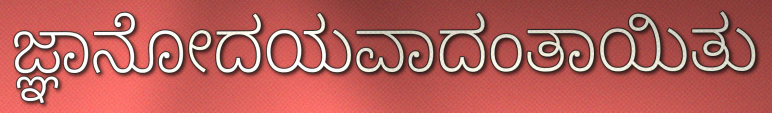
ಜ್ಞಾನೋದಯವಾದಂತಾಯಿತು